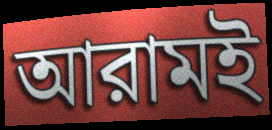
আরামই